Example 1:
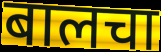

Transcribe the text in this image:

बालचा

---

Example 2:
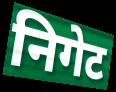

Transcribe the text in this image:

निगेट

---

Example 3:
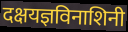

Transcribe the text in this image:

दक्षयज्ञविनाशिनी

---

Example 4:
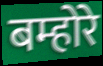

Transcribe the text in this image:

बम्होरे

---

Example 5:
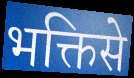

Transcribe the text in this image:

भक्तिसे